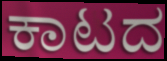
ಕಾಟದ